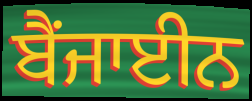
ਬੈਂਜਾਈਨ